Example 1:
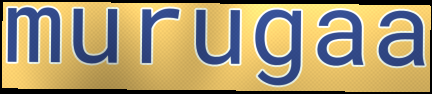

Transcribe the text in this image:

murugaa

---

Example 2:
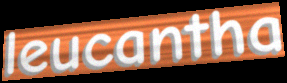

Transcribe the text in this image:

leucantha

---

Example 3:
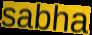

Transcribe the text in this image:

sabha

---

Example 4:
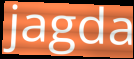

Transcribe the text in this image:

jagda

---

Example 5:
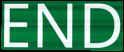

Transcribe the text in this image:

END